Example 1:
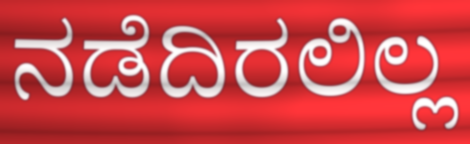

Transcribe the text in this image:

ನಡೆದಿರಲಿಲ್ಲ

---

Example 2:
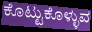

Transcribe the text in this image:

ಕೊಟ್ಟುಕೊಳ್ಳುವ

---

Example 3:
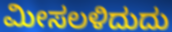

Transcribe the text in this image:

ಮೀಸಲಳಿದುದು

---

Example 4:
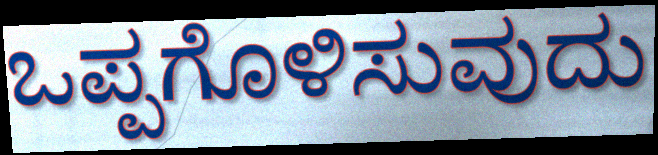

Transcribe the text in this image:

ಒಪ್ಪಗೊಳಿಸುವುದು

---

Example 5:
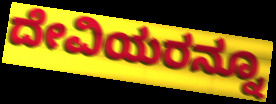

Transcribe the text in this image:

ದೇವಿಯರನ್ನೂ